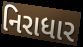
નિરાધાર